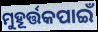
ମୁହୂର୍ତ୍ତକପାଇଁ